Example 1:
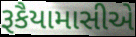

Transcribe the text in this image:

રૂકૈયામાસીએ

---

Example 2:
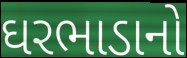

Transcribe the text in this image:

ઘરભાડાનો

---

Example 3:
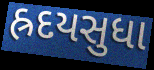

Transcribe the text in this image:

હ્રદયસુધા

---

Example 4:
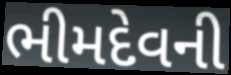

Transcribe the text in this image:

ભીમદેવની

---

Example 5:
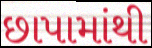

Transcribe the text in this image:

છાપામાંથી